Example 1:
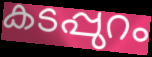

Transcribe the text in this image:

കടപ്പുറം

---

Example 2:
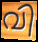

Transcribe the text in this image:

വി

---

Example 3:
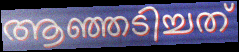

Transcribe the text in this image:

ആഞ്ഞടിച്ചത്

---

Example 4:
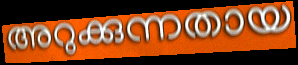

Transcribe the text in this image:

അറുക്കുന്നതായ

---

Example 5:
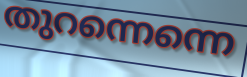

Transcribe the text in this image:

തുറന്നെന്നെ